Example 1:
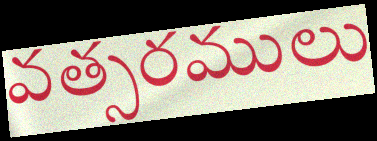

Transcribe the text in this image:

వత్సరములు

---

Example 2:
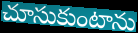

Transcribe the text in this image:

చూసుకుంటాను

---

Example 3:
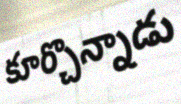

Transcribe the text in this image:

కూర్చొన్నాడు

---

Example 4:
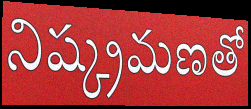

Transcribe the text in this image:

నిష్క్రమణతో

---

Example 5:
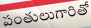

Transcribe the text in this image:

పంతులుగారితో